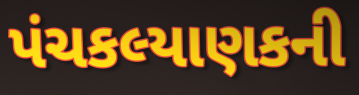
પંચકલ્યાણકની